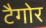
टैगोर